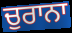
ਚੁਰਾਨਾ